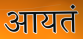
आयतं